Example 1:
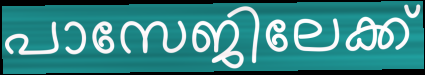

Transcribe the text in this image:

പാസേജിലേക്ക്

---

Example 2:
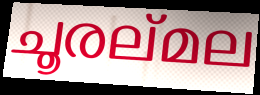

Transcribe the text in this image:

ചൂരല്മല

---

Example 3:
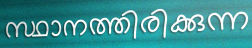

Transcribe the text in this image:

സ്ഥാനത്തിരിക്കുന്ന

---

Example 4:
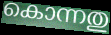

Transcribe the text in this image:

കൊന്നതു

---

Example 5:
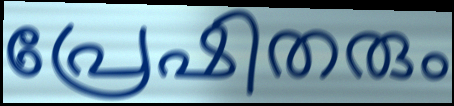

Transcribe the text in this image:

പ്രേഷിതരും